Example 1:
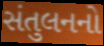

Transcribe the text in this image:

સંતુલનનો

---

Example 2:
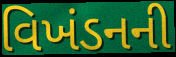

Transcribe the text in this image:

વિખંડનની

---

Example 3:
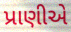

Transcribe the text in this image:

પ્રાણીએ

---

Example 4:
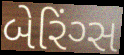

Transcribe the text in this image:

બેરિંગ્સ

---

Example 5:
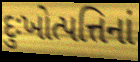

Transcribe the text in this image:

દુઃખોત્પત્તિનાં